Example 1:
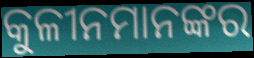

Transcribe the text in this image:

କୁଳୀନମାନଙ୍କର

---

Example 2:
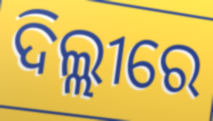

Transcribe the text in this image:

ଦିଲ୍ଲୀରେ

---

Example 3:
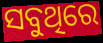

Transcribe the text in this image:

ସବୁଥିରେ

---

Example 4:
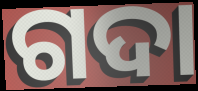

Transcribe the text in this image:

ଗଦା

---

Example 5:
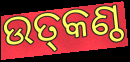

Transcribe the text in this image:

ଉତ୍‌କଣ୍ଠ